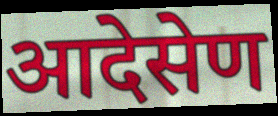
आदेसेण